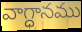
వాగ్ధానము